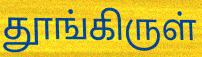
தூங்கிருள்